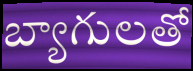
బ్యాగులతో